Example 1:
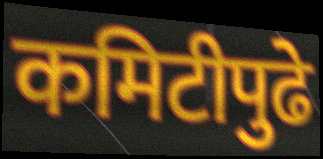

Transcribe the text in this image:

कमिटीपुढे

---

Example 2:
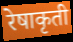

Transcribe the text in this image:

रेषाकृती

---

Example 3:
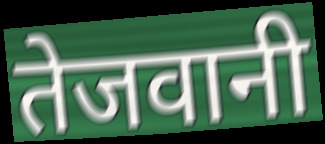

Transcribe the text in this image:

तेजवानी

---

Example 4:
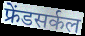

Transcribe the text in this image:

फ्रेंडसर्कल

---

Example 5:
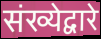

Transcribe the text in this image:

संख्येद्वारे